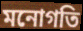
মনোগতি